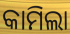
କାମିଲା